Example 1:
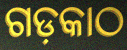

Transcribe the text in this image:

ଗଡ଼କାଠ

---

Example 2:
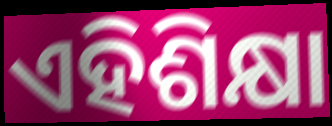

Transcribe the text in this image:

ଏହିଶିକ୍ଷା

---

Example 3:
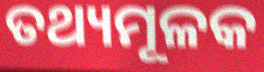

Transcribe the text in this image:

ତଥ୍ୟମୂଳକ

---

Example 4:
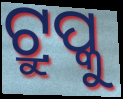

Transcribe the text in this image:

ଟ୍ରୁପ୍କୁ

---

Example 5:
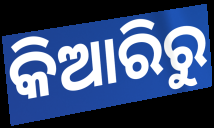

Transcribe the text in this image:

କିଆରିରୁ